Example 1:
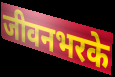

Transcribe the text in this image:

जीवनभरके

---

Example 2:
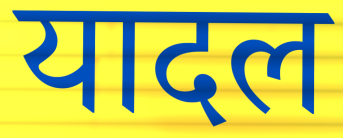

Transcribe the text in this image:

यादल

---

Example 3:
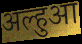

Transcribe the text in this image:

अल्हुआ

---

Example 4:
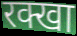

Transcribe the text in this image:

रक्खा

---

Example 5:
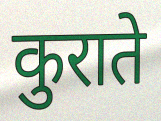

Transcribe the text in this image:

कुराते